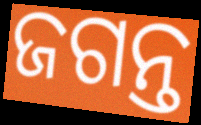
ଜଗନ୍ତ